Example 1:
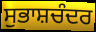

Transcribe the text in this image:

ਸੁਭਾਸ਼ਚੰਦਰ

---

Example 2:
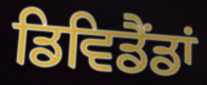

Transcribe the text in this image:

ਡਿਵਿਡੈਂਡਾਂ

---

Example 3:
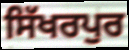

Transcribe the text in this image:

ਸਿੱਖਰਪੁਰ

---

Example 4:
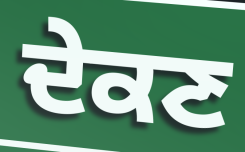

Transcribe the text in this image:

ਦੇਕਣ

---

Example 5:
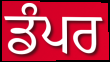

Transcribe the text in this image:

ਡੰਪਰ